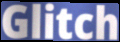
Glitch